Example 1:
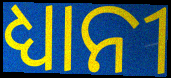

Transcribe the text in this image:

ଧ୍ୟାନୀ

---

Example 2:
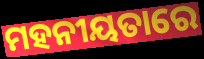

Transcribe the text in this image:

ମହନୀୟତାରେ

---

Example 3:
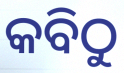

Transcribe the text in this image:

କବିଠୁ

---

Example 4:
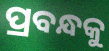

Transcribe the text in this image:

ପ୍ରବନ୍ଧକୁ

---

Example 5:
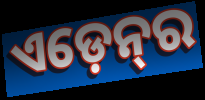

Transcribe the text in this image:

ଏଡ଼େନ୍‍ର